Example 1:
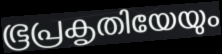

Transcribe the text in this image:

ഭൂപ്രകൃതിയേയും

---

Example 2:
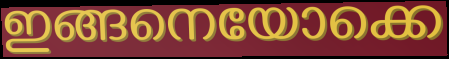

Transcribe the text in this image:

ഇങ്ങനെയോക്കെ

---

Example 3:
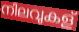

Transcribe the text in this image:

നിലവുകള്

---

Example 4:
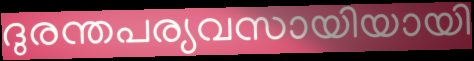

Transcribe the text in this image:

ദുരന്തപര്യവസായിയായി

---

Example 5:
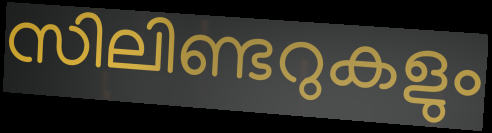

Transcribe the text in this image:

സിലിണ്ടറുകളും